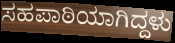
ಸಹಪಾಠಿಯಾಗಿದ್ದಳು